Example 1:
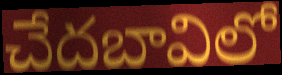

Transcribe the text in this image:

చేదబావిలో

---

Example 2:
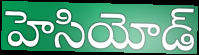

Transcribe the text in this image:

హెసియోడ్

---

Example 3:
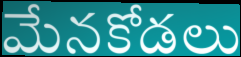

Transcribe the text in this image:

మేనకోడలు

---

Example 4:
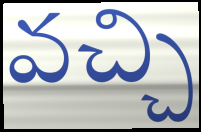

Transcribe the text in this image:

వచ్చి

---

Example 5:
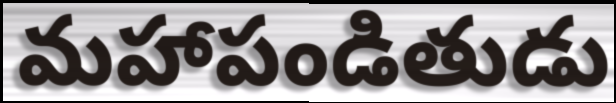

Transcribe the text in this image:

మహాపండితుడు